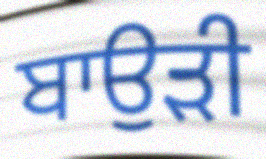
ਬਾਉੜੀ